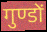
गुण्डों